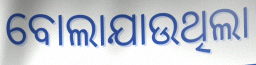
ବୋଲାଯାଉଥିଲା